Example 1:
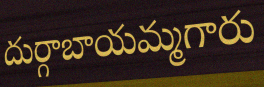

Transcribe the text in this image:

దుర్గాబాయమ్మగారు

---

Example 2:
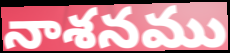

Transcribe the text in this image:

నాశనము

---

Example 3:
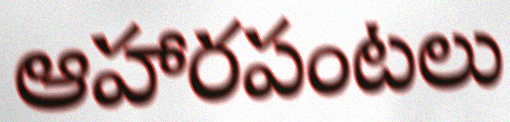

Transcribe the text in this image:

ఆహారపంటలు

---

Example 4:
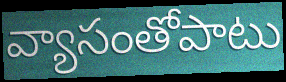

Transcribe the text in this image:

వ్యాసంతోపాటు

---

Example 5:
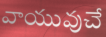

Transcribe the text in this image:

వాయువుచే